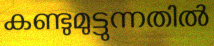
കണ്ടുമുട്ടുന്നതിൽ